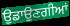
ਉਡਾਉਣਗੀਆਂ